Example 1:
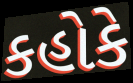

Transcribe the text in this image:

કહોકે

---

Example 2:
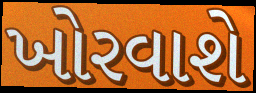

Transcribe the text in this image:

ખોરવાશે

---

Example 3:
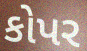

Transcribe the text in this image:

કોપર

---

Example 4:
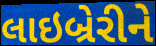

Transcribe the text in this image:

લાઇબ્રેરીને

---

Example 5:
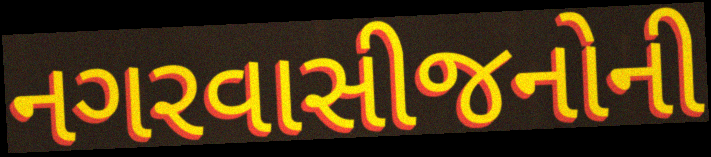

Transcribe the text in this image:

નગરવાસીજનોની